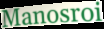
Manosroi